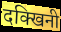
दक्खिनी